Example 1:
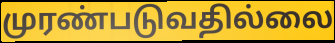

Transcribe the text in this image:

முரண்படுவதில்லை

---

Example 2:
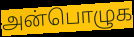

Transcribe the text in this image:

அன்பொழுக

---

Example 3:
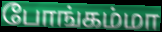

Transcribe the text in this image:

போங்கம்மா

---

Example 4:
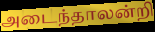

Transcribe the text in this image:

அடைந்தாலன்றி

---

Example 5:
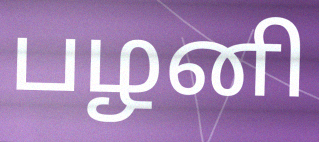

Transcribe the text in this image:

பழனி